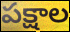
పక్షాల